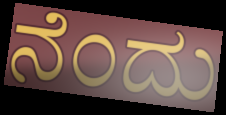
ನೆಂದು